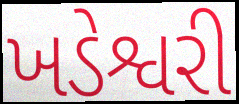
ખડેશ્વરી